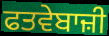
ਫਤਵੇਬਾਜ਼ੀ